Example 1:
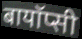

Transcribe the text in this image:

बायॉप्सी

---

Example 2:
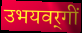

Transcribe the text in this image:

उभयवर्गीं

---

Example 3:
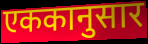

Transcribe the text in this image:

एककानुसार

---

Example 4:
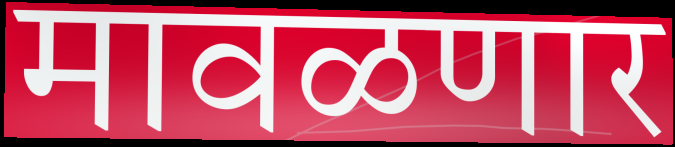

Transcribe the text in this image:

मावळणार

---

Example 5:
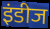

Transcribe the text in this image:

इंडीज